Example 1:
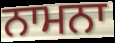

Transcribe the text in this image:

ਨਾਮਨਾ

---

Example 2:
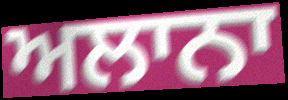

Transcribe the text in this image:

ਅਲਾਨਾ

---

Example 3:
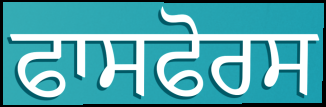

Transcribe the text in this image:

ਫਾਸਫੋਰਸ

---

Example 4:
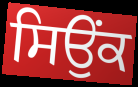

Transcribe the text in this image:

ਸਿਉਂਕ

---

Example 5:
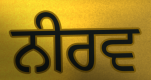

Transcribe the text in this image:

ਨੀਰਵ